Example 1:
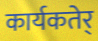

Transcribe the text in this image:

कार्यकतेर्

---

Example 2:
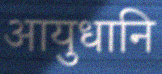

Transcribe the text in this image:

आयुधानि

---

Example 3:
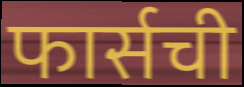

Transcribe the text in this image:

फार्सची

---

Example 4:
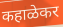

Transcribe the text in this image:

कहाळेकर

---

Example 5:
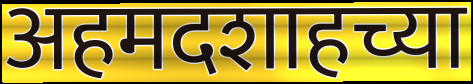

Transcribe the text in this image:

अहमदशाहच्या